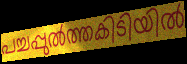
പച്ചപ്പുൽത്തകിടിയിൽ